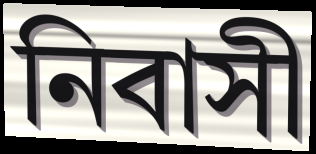
নিবাসী